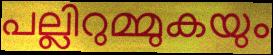
പല്ലിറുമ്മുകയും